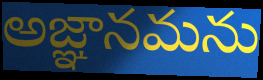
అజ్ఞానమను